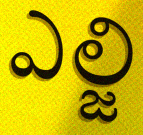
ఎల్జి